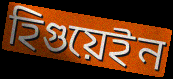
হিগুয়েইন